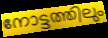
നോട്ടത്തിലും